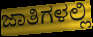
ಜಾತಿಗಳಲ್ಲಿ